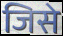
जिसे